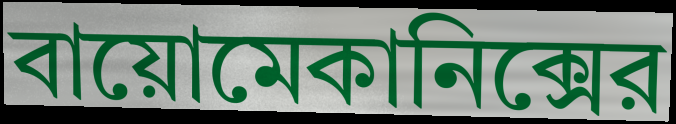
বায়োমেকানিক্সের